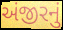
અંજીરનું